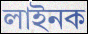
লাইনক